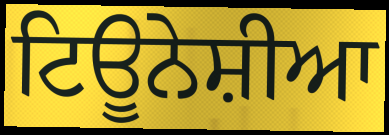
ਟਿਊਨੇਸ਼ੀਆ